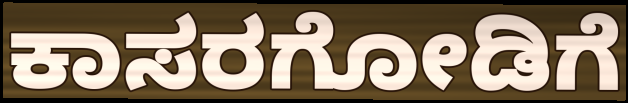
ಕಾಸರಗೋಡಿಗೆ